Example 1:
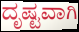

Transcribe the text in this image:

ದೃಷ್ಟವಾಗಿ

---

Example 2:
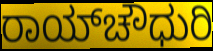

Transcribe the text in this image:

ರಾಯ್‌ಚೌಧುರಿ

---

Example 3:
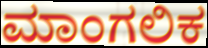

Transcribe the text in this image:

ಮಾಂಗಲಿಕ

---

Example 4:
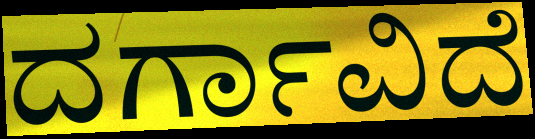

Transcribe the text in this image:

ದರ್ಗಾವಿದೆ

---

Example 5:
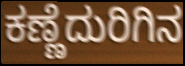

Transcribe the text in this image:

ಕಣ್ಣೆದುರಿಗಿನ